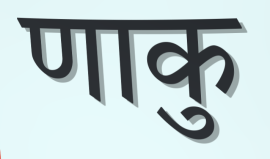
णाकु